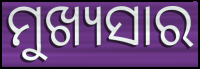
ମୁଖ୍ୟସାର